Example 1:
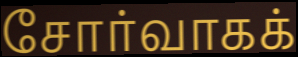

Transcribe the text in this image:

சோர்வாகக்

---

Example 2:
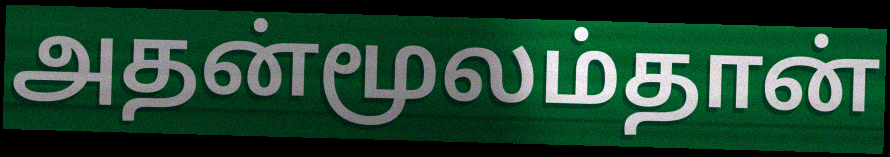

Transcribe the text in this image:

அதன்மூலம்தான்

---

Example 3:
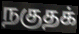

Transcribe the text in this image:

நகுதக்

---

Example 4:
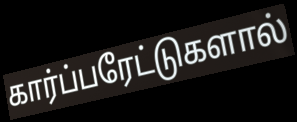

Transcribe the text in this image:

கார்ப்பரேட்டுகளால்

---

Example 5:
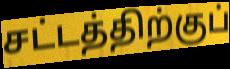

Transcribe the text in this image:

சட்டத்திற்குப்